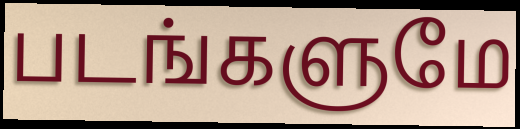
படங்களுமே